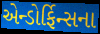
એન્ડોર્ફિન્સના